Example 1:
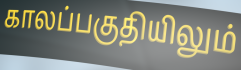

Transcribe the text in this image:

காலப்பகுதியிலும்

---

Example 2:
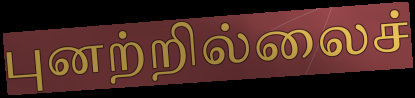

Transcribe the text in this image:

புனற்றில்லைச்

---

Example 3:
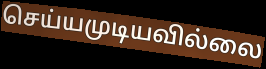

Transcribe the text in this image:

செய்யமுடியவில்லை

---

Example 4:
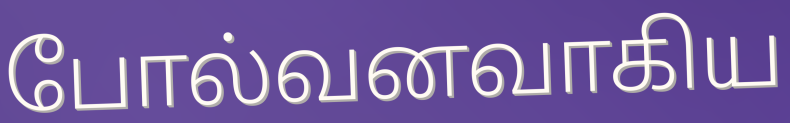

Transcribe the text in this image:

போல்வனவாகிய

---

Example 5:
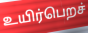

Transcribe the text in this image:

உயிர்பெறச்